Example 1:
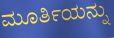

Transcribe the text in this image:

ಮೂರ್ತಿಯನ್ನು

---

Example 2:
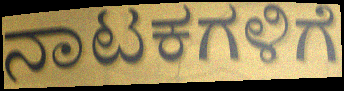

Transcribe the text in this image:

ನಾಟಕಗಳಿಗೆ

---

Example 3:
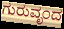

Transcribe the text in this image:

ಗುರುವೃಂದ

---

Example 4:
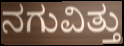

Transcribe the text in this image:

ನಗುವಿತ್ತು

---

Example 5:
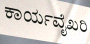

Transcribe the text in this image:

ಕಾರ್ಯವೈಖರಿ